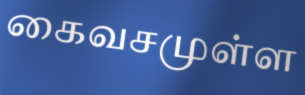
கைவசமுள்ள